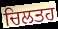
ਚਿਲਤਹ